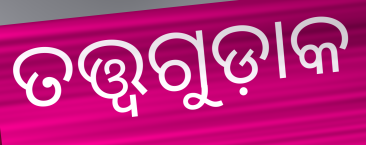
ତତ୍ତ୍ୱଗୁଡ଼ାକ